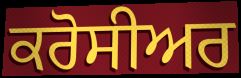
ਕਰੋਸੀਅਰ